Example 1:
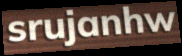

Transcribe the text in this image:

srujanhw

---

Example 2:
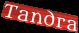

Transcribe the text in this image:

Tandra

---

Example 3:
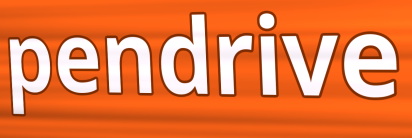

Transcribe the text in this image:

pendrive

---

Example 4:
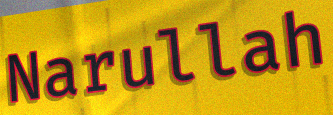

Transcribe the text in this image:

Narullah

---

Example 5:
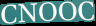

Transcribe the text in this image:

CNOOC